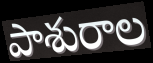
పాశురాల